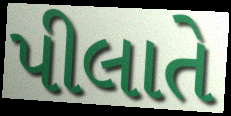
પીલાતે